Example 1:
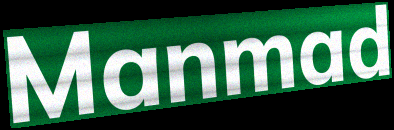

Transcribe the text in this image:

Manmad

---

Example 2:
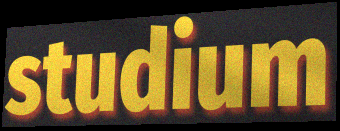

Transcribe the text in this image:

studium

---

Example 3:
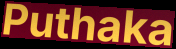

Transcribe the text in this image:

Puthaka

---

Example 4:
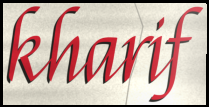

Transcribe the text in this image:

kharif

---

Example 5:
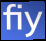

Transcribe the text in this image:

fiy